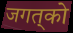
जगत्‌को